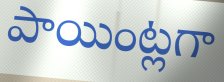
పాయింట్లగా